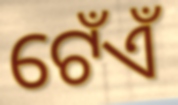
ଟେଁଏଁ